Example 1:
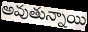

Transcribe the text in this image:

అవుతున్నాయి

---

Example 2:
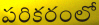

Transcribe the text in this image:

పరికరంలో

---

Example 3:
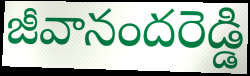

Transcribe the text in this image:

జీవానందరెడ్డి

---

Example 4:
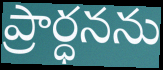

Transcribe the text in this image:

ప్రార్ధనను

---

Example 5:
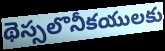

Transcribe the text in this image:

థెస్సలొనీకయులకు